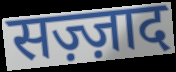
सज़्ज़ाद